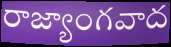
రాజ్యాంగవాద